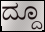
ದ್ದೂ